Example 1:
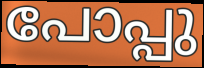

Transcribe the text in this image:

പോപ്പു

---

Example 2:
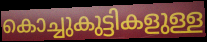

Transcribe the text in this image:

കൊച്ചുകുട്ടികളുള്ള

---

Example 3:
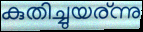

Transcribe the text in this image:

കുതിച്ചുയര്ന്നു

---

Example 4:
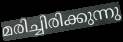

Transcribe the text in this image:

മരിച്ചിരിക്കുന്നു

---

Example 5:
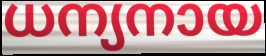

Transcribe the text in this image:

ധന്യനായ